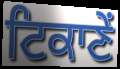
ਟਿਕਾਣੇਂ